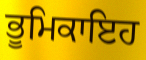
ਭੂਮਿਕਾਇਹ